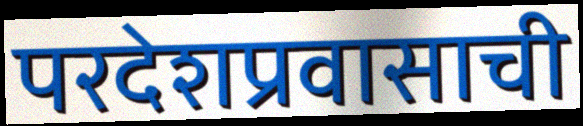
परदेशप्रवासाची